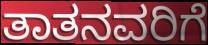
ತಾತನವರಿಗೆ